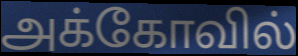
அக்கோவில்